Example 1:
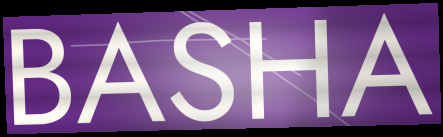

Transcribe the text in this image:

BASHA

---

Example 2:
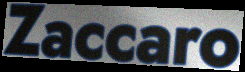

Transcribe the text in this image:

Zaccaro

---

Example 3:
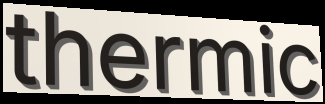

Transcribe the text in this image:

thermic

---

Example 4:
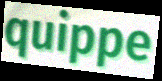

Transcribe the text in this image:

quippe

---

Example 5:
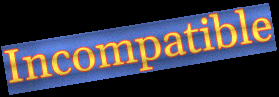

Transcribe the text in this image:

Incompatible